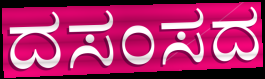
ದಸಂಸದ